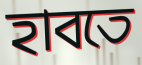
হাবতে